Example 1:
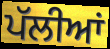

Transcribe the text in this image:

ਪੱਲੀਆਂ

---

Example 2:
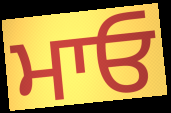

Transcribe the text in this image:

ਮਾਓ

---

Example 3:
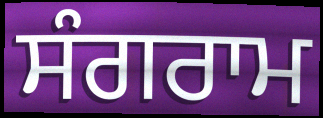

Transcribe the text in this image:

ਸੰਗਰਾਮ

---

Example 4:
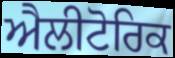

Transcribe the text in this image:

ਐਲੀਟੋਰਿਕ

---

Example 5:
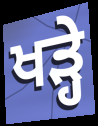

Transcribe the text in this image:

ਖਡ਼੍ਹੇ